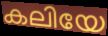
കലിയേ